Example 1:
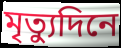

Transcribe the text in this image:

মৃত্যুদিনে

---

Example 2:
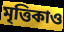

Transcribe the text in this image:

মৃত্তিকাও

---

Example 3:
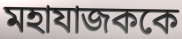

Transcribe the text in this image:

মহাযাজককে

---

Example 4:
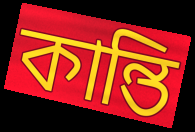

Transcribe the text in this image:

কান্তি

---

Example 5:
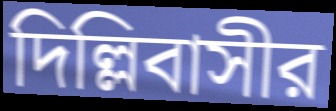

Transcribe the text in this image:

দিল্লিবাসীর